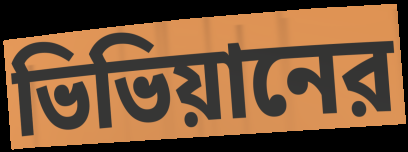
ভিভিয়ানের